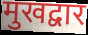
मुखद्वार